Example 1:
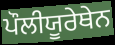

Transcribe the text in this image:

ਪੌਲੀਯੂਰੇਥੇਨ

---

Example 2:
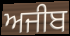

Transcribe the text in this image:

ਅਜੀਬ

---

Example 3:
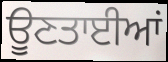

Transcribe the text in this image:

ਊਣਤਾਈਆਂ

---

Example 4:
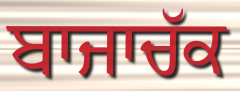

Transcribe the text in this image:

ਬਾਜਾਚੱਕ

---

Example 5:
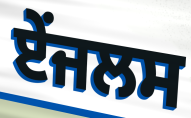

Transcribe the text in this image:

ਏਂਜਲਸ